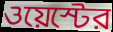
ওয়েস্টের